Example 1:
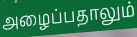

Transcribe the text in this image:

அழைப்பதாலும்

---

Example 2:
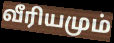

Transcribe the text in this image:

வீரியமும்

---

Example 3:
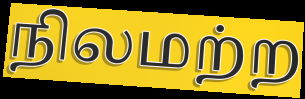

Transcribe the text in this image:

நிலமற்ற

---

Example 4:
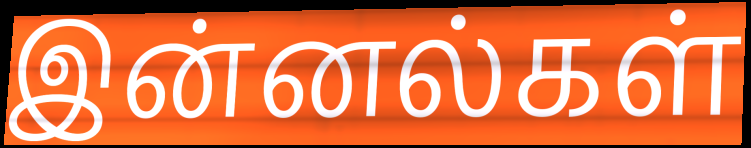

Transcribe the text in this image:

இன்னல்கள்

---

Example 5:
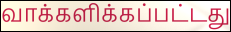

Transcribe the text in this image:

வாக்களிக்கப்பட்டது